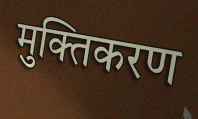
मुक्तिकरण